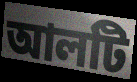
আলটি